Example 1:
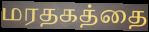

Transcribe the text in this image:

மரதகத்தை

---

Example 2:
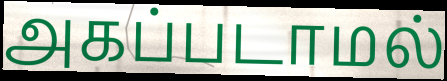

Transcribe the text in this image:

அகப்படாமல்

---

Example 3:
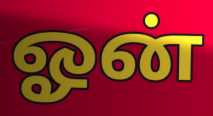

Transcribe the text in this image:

ஓன்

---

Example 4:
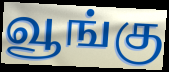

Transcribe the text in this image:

வூங்கு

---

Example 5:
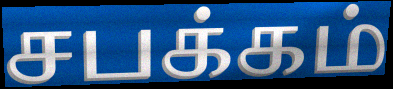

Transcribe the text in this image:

சபக்கம்